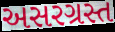
અસરગ્રસ્ત